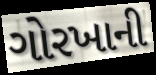
ગોરખાની